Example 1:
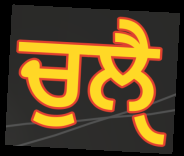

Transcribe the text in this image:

ਚੁਲੈੑ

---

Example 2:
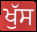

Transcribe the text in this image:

ਖੁੱਸ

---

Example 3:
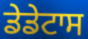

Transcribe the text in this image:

ਡੇਡੇਟਾਸ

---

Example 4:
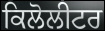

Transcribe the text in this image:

ਕਿਲੋਲੀਟਰ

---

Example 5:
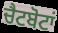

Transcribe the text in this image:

ਚੈਟਬੋਟਾਂ